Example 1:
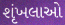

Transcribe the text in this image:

શૃંખલાઓ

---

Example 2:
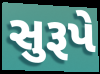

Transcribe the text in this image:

સુરૂપે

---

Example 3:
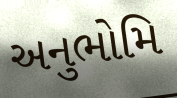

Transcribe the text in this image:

અનુભોમિ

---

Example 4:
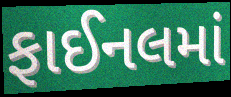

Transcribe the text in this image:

ફાઈનલમાં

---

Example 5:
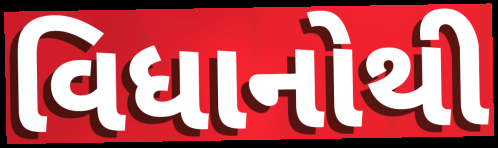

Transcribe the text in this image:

વિધાનોથી